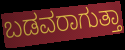
ಬಡವರಾಗುತ್ತಾ